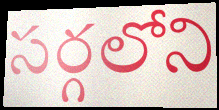
సర్గలోని